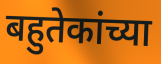
बहुतेकांच्या